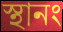
স্থানং